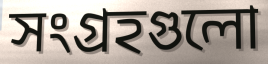
সংগ্রহগুলো